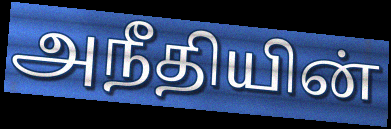
அநீதியின்